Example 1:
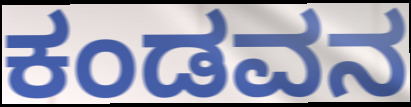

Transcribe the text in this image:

ಕಂಡವನ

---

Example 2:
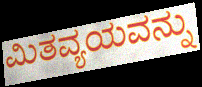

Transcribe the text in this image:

ಮಿತವ್ಯಯವನ್ನು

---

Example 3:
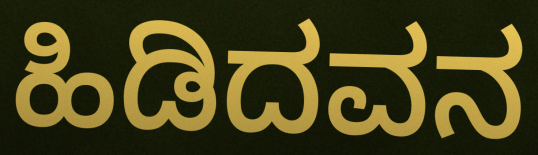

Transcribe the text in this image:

ಹಿಡಿದವನ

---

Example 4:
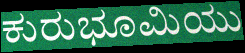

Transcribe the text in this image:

ಕುರುಭೂಮಿಯು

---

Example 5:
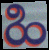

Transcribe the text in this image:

ಹಿ